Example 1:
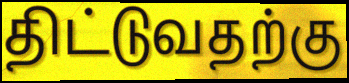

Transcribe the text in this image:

திட்டுவதற்கு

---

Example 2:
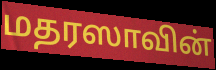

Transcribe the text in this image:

மதரஸாவின்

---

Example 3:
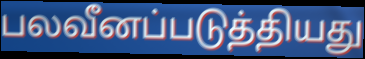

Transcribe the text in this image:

பலவீனப்படுத்தியது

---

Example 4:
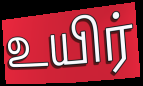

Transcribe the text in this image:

உயிர்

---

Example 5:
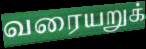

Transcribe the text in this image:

வரையறுக்